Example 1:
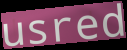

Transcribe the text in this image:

usred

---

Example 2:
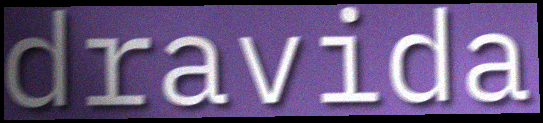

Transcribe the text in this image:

dravida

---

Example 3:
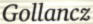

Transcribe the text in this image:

Gollancz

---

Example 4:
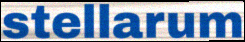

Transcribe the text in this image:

stellarum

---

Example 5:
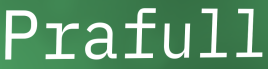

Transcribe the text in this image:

Prafull